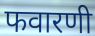
फवारणी